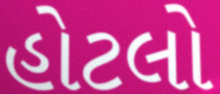
હોટલો